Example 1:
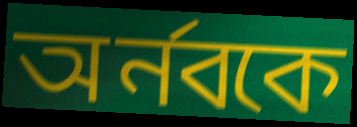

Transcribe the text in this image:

অর্নবকে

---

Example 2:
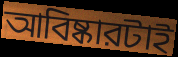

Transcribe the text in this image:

আবিষ্কারটাই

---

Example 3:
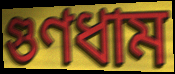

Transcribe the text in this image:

গুণধাম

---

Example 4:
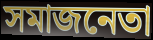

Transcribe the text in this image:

সমাজনেতা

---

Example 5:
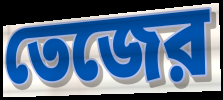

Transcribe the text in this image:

তেজের